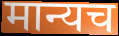
मान्यच